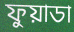
ফুয়াডা